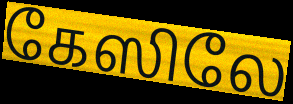
கேஸிலே